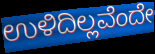
ಉಳಿದಿಲ್ಲವೆಂದೇ